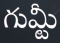
గుమ్టీ